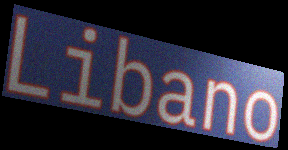
Libano